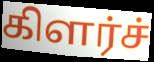
கிளர்ச்